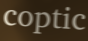
coptic